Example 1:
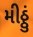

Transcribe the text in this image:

મીઠ્ઠું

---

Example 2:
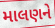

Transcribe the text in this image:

માલણને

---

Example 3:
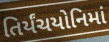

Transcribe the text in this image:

તિર્યંચયોનિમાં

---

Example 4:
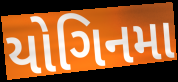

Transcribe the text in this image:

યોગિનમા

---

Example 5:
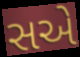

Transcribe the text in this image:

સએ